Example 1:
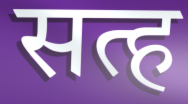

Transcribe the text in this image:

सत्ह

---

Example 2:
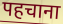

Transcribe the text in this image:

पहचाना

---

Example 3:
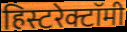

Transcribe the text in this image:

हिस्टरेक्टॉमी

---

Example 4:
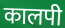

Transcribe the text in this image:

कालपी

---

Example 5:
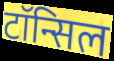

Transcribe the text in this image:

टॉन्सिल